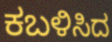
ಕಬಳಿಸಿದ